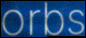
orbs